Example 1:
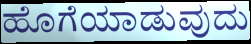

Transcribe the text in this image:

ಹೊಗೆಯಾಡುವುದು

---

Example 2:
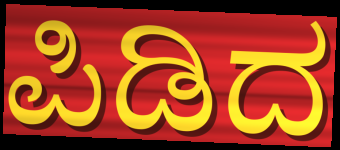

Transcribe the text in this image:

ಪಿಡಿದ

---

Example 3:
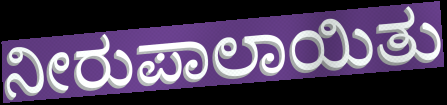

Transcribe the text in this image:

ನೀರುಪಾಲಾಯಿತು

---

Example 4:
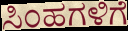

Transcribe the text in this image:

ಸಿಂಹಗಳಿಗೆ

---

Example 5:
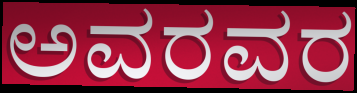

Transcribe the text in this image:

ಅವರವರ